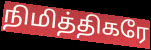
நிமித்திகரே